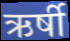
ऋर्षी